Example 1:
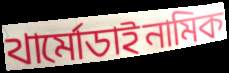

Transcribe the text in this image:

থার্মোডাইনামিক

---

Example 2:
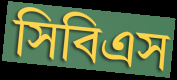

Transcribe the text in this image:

সিবিএস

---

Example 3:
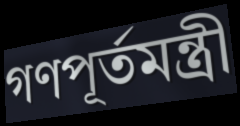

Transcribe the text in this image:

গণপূর্তমন্ত্রী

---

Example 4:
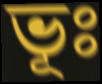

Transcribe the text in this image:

ভূঃ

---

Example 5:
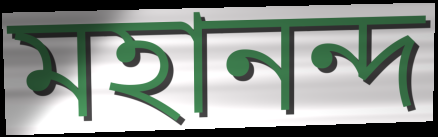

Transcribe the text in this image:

মহানন্দ